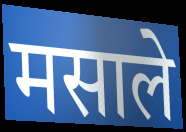
मसाले